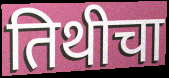
तिथीचा